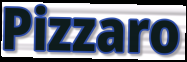
Pizzaro